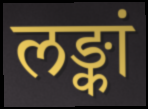
लङ्कां